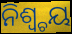
ନିଶ୍ୱ୍ଚୟ